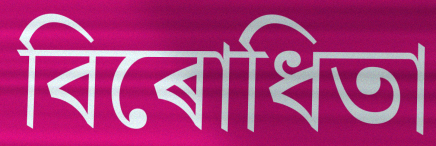
বিৰোধিতা